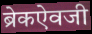
ब्रेकऐवजी